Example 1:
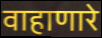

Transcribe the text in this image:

वाहाणारे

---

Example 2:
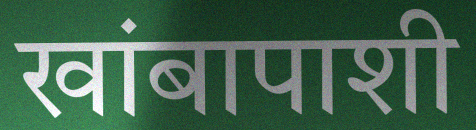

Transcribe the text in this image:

खांबापाशी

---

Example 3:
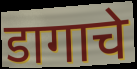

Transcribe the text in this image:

डागाचे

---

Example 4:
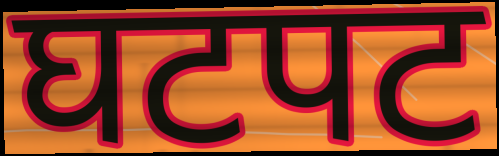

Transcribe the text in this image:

घटपट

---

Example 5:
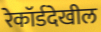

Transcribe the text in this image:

रेकॉर्डदेखील